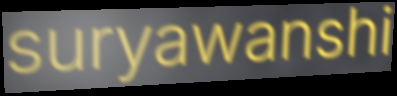
suryawanshi